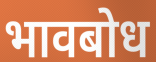
भावबोध